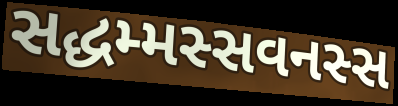
સદ્ધમ્મસ્સવનસ્સ